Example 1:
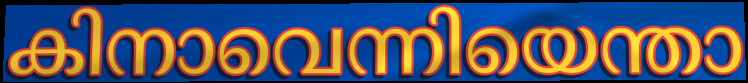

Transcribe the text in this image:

കിനാവെന്നിയെന്താ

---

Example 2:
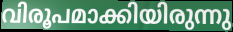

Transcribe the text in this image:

വിരൂപമാക്കിയിരുന്നു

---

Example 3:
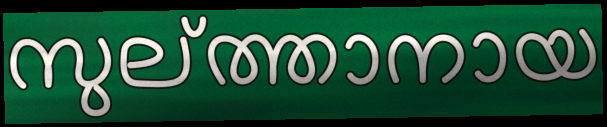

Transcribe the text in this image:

സുല്ത്താനായ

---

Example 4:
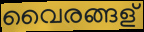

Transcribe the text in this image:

വൈരങ്ങള്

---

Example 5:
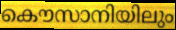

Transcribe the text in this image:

കൌസാനിയിലും